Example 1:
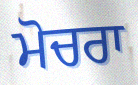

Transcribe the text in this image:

ਮੋਚਰਾ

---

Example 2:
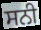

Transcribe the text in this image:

ਸਨੀ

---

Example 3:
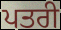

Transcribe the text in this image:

ਪਤਰੀ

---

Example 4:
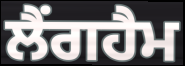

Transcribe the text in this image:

ਲੈਂਗਹੈਮ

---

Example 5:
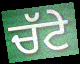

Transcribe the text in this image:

ਚੱਟੇ